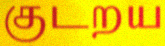
குடறய